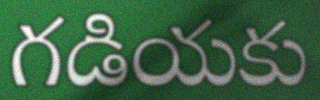
గడియకు